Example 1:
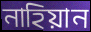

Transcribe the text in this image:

নাহিয়ান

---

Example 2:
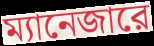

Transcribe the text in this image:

ম্যানেজারে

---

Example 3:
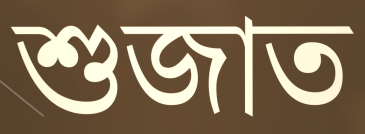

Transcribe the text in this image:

শুজাত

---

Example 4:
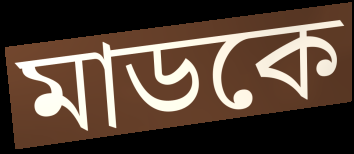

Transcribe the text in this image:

মাডকে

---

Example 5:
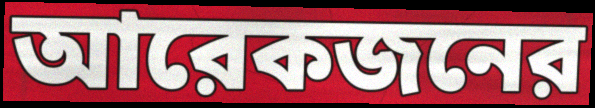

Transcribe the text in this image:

আরেকজনের